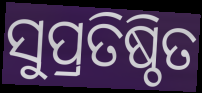
ସୁପ୍ରତିଷ୍ଠିତ